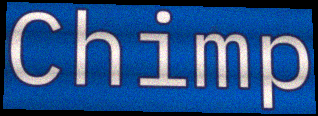
Chimp